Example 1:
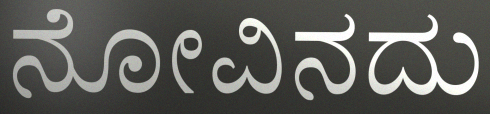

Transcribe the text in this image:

ನೋವಿನದು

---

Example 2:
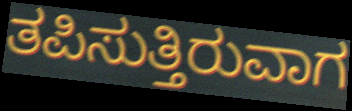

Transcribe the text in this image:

ತಪಿಸುತ್ತಿರುವಾಗ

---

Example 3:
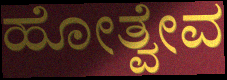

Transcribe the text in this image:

ಹೋತ್ವೇವ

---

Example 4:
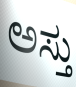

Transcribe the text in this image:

ಅಸ್ತು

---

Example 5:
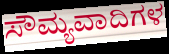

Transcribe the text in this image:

ಸೌಮ್ಯವಾದಿಗಳ